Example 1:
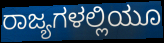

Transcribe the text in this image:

ರಾಜ್ಯಗಳಲ್ಲಿಯೂ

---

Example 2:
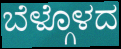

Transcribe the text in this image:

ಬೆಳ್ಗೊಳದ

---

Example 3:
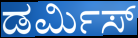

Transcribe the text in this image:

ಡರ್ಮಿಸ್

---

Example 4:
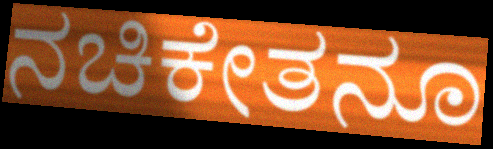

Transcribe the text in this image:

ನಚಿಕೇತನೂ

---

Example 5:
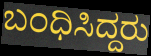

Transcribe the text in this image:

ಬಂಧಿಸಿದ್ದರು